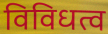
विविधत्व